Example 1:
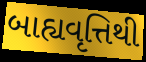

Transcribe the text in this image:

બાહ્યવૃત્તિથી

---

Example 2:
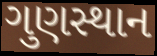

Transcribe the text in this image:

ગુણસ્થાન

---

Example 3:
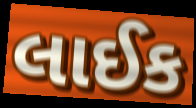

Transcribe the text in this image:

લાઈક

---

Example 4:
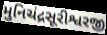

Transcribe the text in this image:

મુનિચંદ્રસૂરીશ્વરજી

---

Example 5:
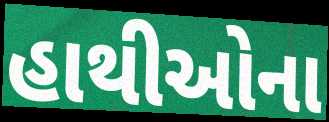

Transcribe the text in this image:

હાથીઓના